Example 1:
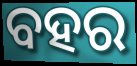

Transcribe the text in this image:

ବହର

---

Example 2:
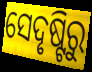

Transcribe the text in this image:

ସେଦୃଷ୍ଟିରୁ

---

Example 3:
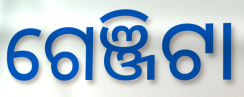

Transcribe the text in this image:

ଗେଞ୍ଜିଟା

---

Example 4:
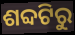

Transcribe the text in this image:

ଶବ୍ଦଟିରୁ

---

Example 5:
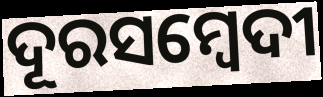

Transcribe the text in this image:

ଦୂରସମ୍ବେଦୀ